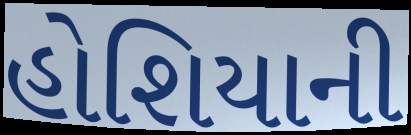
હોશિયાની